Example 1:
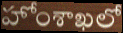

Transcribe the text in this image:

హోంశాఖలో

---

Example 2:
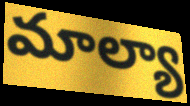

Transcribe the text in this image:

మాల్యా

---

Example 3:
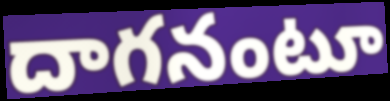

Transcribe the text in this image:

దాగనంటూ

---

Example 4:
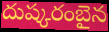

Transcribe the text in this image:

దుష్కరంబైన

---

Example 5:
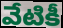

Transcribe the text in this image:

వేటికీ